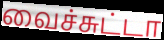
வைச்சுட்டா